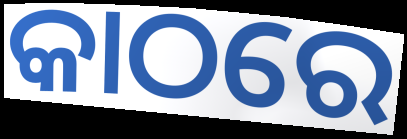
କାଠରେ